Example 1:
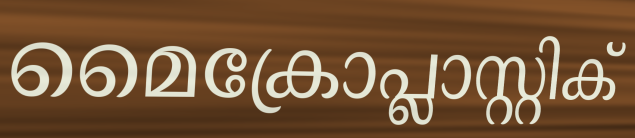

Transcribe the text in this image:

മൈക്രോപ്ലാസ്റ്റിക്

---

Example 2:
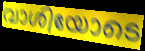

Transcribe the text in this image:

വാശിയോടെ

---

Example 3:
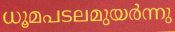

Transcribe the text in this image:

ധൂമപടലമുയർന്നു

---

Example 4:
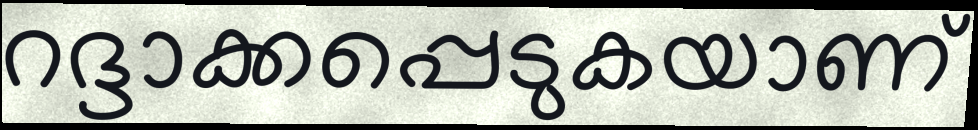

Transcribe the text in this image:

റദ്ദാക്കപ്പെടുകയാണ്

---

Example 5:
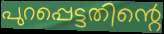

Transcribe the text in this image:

പുറപ്പെട്ടതിന്റെ